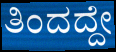
ತಿಂದದ್ದೇ